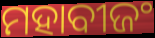
ମହାବୀଜଂ